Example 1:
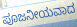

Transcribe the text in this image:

ಪೂಜನೀಯವಾದ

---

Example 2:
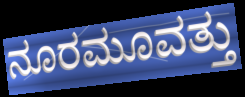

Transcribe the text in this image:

ನೂರಮೂವತ್ತು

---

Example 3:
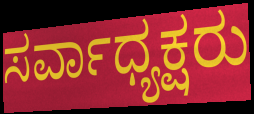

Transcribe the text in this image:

ಸರ್ವಾಧ್ಯಕ್ಷರು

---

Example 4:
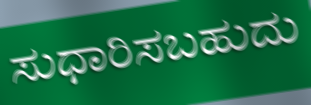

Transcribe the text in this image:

ಸುಧಾರಿಸಬಹುದು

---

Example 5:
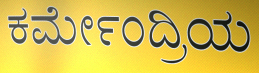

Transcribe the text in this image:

ಕರ್ಮೇಂದ್ರಿಯ